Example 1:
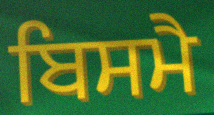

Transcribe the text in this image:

ਬਿਸਮੈ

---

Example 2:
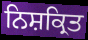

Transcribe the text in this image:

ਨਿਸ਼ਕ੍ਰਿਤ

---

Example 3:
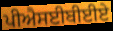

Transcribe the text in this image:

ਪੀਐਸਈਬੀਈਏ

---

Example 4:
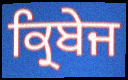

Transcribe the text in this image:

ਕ੍ਰਿਬੇਜ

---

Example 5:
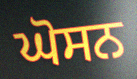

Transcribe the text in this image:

ਘੋਸਨ